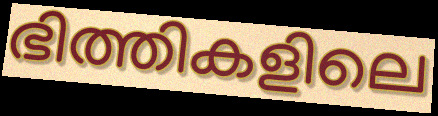
ഭിത്തികളിലെ